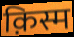
क़िस्‍म